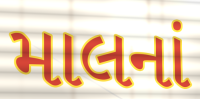
માલનાં